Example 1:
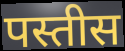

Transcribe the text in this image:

पस्तीस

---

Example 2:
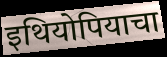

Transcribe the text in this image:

इथियोपियाचा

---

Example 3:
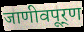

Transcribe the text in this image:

जाणीवपूर्ण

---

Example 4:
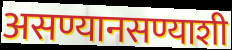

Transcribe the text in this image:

असण्यानसण्याशी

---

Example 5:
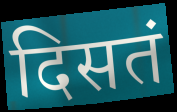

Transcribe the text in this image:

दिसतं